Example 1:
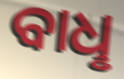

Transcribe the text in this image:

ବାଧୢ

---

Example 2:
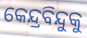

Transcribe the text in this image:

କେନ୍ଦ୍ରବିନ୍ଦୁକୁ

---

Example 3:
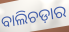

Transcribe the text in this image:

ବାଲିଚଡ଼ାର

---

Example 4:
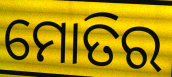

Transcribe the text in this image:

ମୋତିର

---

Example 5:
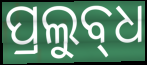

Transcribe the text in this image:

ପ୍ରଲୁବ୍‌ଧ